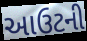
આઉટની